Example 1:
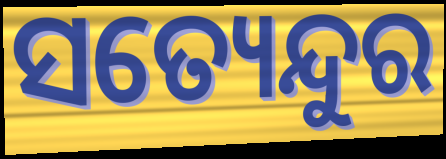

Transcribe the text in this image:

ସତ୍ୟେନ୍ଦୁର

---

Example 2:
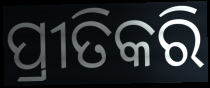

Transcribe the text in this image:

ପ୍ରୀତିକରି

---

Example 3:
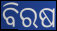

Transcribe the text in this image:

ବିରଷ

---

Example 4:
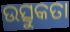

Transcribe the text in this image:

ଉତ୍ସୁକତା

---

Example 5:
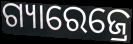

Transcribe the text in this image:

ଗ୍ୟାରେଜ୍ରେ